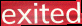
exited